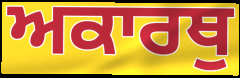
ਅਕਾਰਥੁ